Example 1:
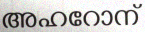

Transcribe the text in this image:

അഹറോന്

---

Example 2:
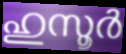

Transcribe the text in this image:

ഹുസൂർ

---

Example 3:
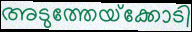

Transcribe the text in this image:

അടുത്തേയ്‌ക്കോടി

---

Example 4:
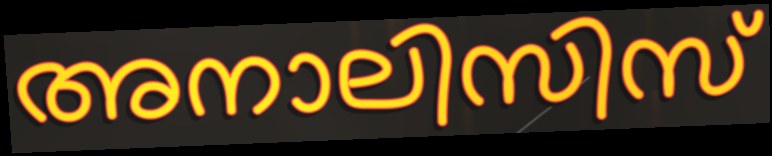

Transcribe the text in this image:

അനാലിസിസ്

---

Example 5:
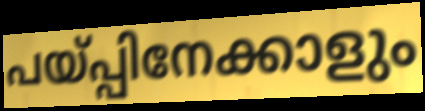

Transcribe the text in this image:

പയ്പ്പിനേക്കാളും